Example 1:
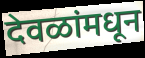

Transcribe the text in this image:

देवळांमधून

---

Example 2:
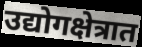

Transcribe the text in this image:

उद्योगक्षेत्रात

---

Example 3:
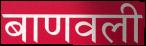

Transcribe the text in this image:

बाणवली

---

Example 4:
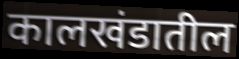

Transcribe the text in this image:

कालखंडातील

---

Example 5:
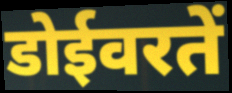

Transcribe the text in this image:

डोईवरतें